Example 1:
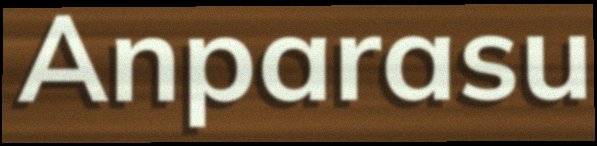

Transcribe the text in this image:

Anparasu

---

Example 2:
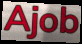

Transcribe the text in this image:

Ajob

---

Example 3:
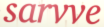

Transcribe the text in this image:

sarvve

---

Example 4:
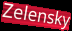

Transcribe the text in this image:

Zelensky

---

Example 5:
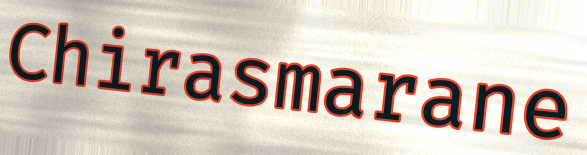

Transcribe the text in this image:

Chirasmarane